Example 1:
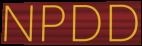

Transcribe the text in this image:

NPDD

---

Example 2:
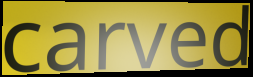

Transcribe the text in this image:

carved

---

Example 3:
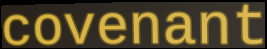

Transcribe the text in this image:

covenant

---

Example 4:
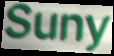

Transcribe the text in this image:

Suny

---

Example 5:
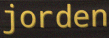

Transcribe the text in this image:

jorden